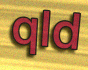
qld